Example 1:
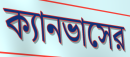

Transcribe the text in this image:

ক্যানভাসের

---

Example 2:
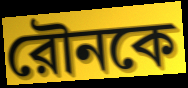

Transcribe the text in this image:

রৌনকে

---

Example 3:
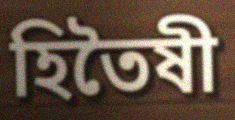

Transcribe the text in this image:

হিতৈষী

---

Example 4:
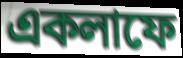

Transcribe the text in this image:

একলাফে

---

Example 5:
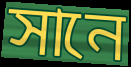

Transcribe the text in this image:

সানে